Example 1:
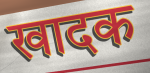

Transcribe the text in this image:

खादक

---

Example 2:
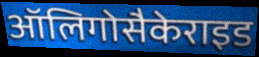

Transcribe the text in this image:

ऑलिगोसैकेराइड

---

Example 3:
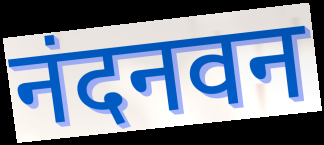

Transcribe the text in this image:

नंदनवन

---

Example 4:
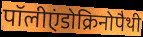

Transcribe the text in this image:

पॉलीएंडोक्रिनोपैथी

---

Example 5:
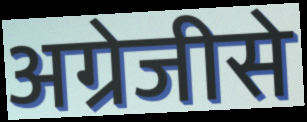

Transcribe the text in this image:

अग्रेजीसे